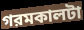
গরমকালটা